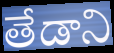
తేడాని